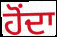
ਹੋਂਦਾ